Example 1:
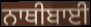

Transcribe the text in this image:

ਨਾਥੀਬਾਈ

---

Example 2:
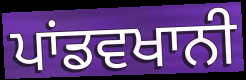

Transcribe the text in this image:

ਪਾਂਡਵਖਾਨੀ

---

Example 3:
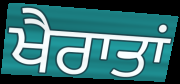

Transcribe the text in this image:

ਖੈਰਾਤਾਂ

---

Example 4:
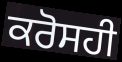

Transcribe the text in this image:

ਕਰੋਸਹੀ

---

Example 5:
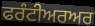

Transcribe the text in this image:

ਫਰੰਟੀਅਰਅਰ